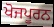
ਖੋਜਪੂਰਨ